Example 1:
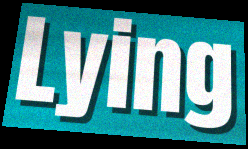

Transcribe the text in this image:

Lying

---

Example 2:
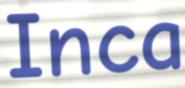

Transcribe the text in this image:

Inca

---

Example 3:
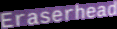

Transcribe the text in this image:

Eraserhead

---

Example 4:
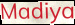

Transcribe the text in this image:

Madiya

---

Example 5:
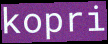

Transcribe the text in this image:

kopri